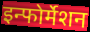
इन्फोर्मेशन